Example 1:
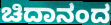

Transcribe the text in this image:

ಚಿದಾನಂದ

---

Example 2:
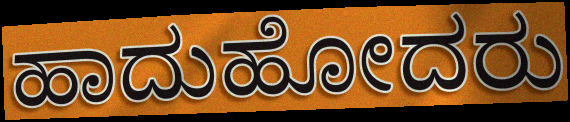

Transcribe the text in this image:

ಹಾದುಹೋದರು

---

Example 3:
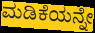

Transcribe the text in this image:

ಮಡಿಕೆಯನ್ನೇ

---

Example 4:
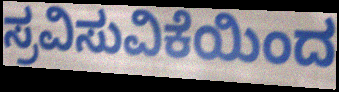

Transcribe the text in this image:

ಸ್ರವಿಸುವಿಕೆಯಿಂದ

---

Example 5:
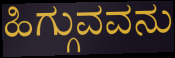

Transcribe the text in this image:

ಹಿಗ್ಗುವವನು